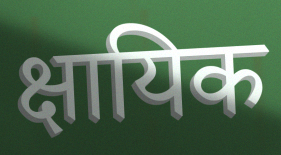
क्षायिक